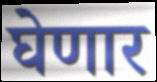
घेणार